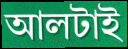
আলটাই